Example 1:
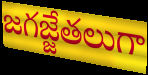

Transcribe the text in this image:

జగజ్జేతలుగా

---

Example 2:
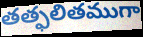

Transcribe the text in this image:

తత్ఫలితముగా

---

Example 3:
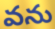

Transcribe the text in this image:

వను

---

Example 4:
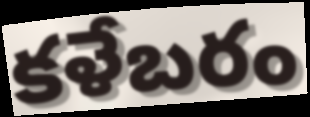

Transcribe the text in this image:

కళేబరం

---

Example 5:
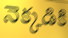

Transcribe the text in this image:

నెక్కడికి